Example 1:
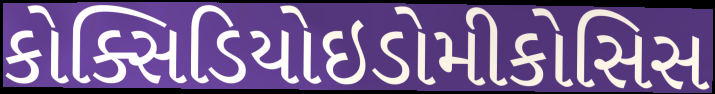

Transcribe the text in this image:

કોક્સિડિયોઇડોમીકોસિસ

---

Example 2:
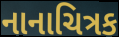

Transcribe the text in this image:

નાનાચિત્રક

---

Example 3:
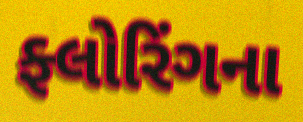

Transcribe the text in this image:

ફ્લોરિંગના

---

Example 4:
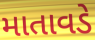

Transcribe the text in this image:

માતાવડે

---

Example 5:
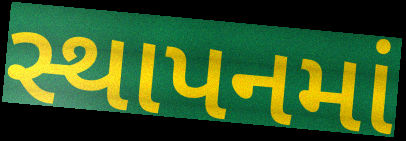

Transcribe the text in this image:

સ્થાપનમાં